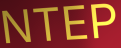
NTEP